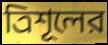
ত্রিশূলের